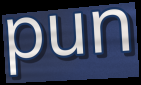
pun